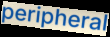
peripheral